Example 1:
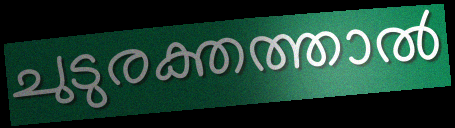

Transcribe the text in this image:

ചുടുരക്തത്താൽ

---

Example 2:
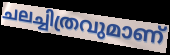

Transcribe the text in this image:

ചലച്ചിത്രവുമാണ്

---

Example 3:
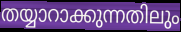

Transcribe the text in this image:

തയ്യാറാക്കുന്നതിലും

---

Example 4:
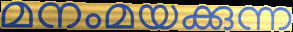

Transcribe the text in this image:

മനംമയക്കുന്ന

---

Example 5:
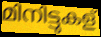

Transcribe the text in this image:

മിനിട്ടുകള്